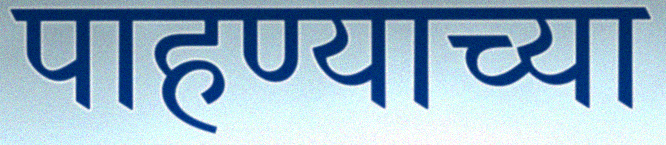
पाहण्याच्या